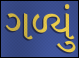
ગળ્યું